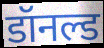
डॉनल्ड